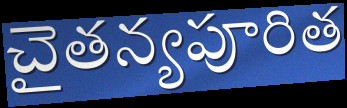
చైతన్యపూరిత